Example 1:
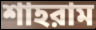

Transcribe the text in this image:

শাহরাম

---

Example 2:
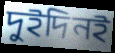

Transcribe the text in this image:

দুইদিনই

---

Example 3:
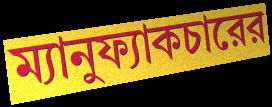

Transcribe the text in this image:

ম্যানুফ্যাকচারের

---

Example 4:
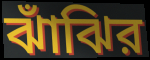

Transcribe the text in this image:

ঝাঁঝির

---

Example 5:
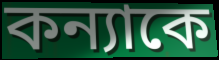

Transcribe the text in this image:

কন্যাকে